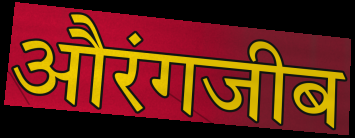
औरंगजीब